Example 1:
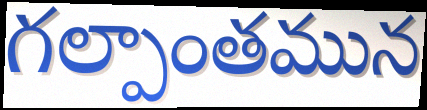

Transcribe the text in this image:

గల్పాంతమున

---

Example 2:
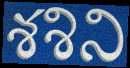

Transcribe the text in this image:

శశిని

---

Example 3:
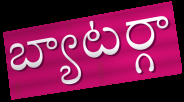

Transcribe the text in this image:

బ్యాటర్గా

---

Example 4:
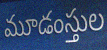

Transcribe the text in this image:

మూడంస్తుల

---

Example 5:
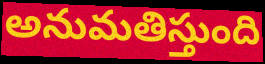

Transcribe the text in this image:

అనుమతిస్తుంది